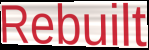
Rebuilt